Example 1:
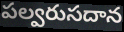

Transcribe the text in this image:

పల్వరుసదాన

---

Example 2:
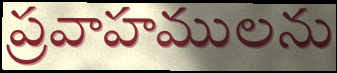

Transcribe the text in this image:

ప్రవాహములను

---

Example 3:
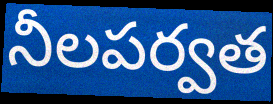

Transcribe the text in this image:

నీలపర్వత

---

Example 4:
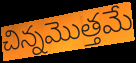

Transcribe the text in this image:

చిన్నమొత్తమే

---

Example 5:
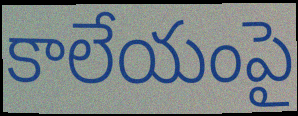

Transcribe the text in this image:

కాలేయంపై